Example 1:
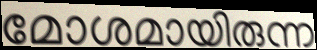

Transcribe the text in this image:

മോശമായിരുന്ന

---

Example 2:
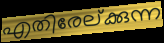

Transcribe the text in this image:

എതിരേല്ക്കുന്ന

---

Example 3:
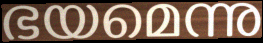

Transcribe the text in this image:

ഭയമെന്നു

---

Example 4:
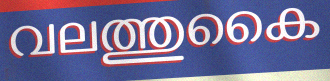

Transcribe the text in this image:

വലത്തുകൈ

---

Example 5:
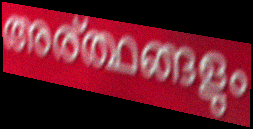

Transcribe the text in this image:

അര്ത്ഥങ്ങളും